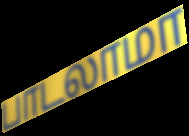
பாடலாமா